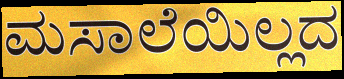
ಮಸಾಲೆಯಿಲ್ಲದ